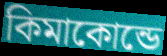
কিমাকোন্ডে